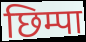
छिम्पा